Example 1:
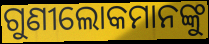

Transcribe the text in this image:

ଗୁଣୀଲୋକମାନଙ୍କୁ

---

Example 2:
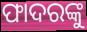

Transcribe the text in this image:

ଫାଦରଙ୍କୁ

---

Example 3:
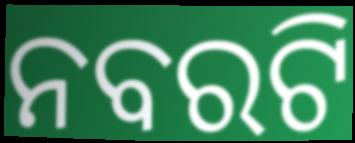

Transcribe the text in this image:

ନବରଟି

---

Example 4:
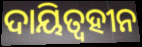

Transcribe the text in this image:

ଦାୟିତ୍ଵହୀନ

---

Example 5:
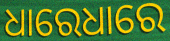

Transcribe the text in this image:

ଧାରେଧାରେ